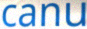
canu